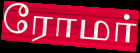
ரோமர்